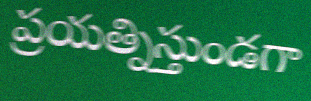
ప్రయత్నిస్తుండగా